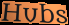
Hubs